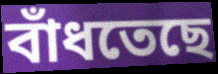
বাঁধতেছে